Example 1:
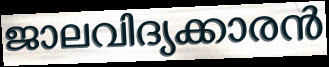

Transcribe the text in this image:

ജാലവിദ്യക്കാരൻ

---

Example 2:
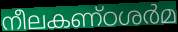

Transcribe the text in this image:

നീലകണ്ഠശർമ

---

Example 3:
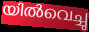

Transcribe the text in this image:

യിൽവെച്ചു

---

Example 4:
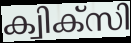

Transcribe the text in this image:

ക്വിക്സി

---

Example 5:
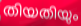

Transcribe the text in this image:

തിയതിയും